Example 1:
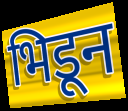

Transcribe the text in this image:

भिडून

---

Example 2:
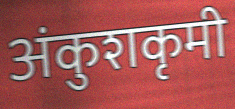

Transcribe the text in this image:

अंकुशकृमी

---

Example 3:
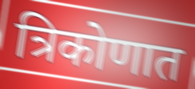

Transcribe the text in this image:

त्रिकोणात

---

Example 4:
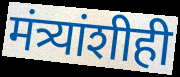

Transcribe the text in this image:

मंत्र्यांशीही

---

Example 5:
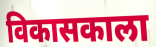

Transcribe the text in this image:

विकासकाला